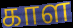
காள